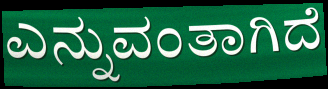
ಎನ್ನುವಂತಾಗಿದೆ